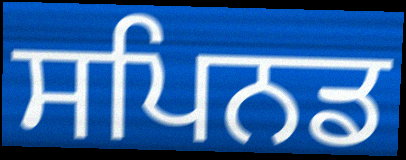
ਸਪਿਨਡ